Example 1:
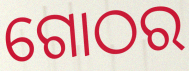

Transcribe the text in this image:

ଗୋଠର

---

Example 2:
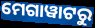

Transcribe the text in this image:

ମେଗାୱାଟରୁ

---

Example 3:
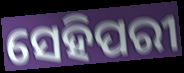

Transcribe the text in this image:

ସେହିପରୀ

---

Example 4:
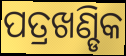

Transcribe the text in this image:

ପତ୍ରଖଣ୍ଡିକ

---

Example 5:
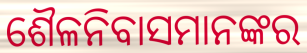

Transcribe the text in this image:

ଶୈଳନିବାସମାନଙ୍କର